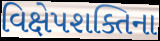
વિક્ષેપશક્તિના